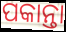
ପକାନ୍ତା